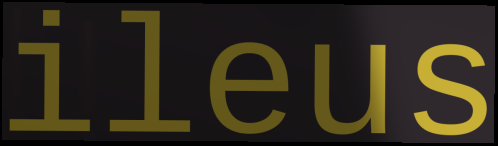
ileus